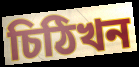
চিঠিখন